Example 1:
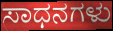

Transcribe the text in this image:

ಸಾಧನಗಳು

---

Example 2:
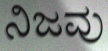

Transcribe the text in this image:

ನಿಜವು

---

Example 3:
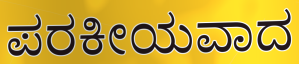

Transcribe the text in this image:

ಪರಕೀಯವಾದ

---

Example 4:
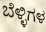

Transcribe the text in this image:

ಬೆಳ್ಳಿಗಳ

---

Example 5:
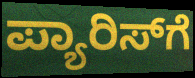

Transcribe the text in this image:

ಪ್ಯಾರಿಸ್‍ಗೆ